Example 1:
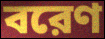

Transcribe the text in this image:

বরেণ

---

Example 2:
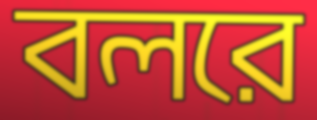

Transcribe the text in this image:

বলরে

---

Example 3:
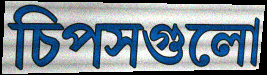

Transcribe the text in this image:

চিপসগুলো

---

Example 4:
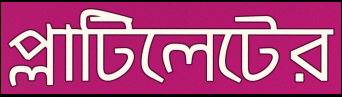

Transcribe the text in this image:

প্লাটিলেটের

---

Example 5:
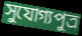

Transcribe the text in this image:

সুযোগ্যপুত্র